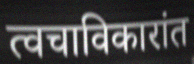
त्वचाविकारांत